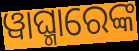
ୱାଘ୍ମାରେଙ୍କ